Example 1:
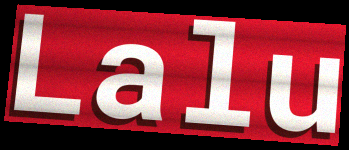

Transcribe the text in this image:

Lalu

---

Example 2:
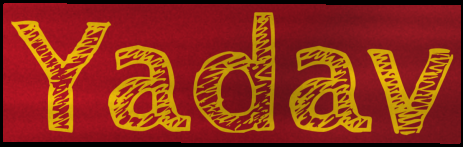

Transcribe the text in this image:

Yadav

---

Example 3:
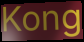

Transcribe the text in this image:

Kong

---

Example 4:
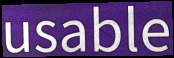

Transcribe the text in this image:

usable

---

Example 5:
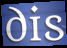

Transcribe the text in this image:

dis